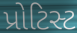
પ્રોટિસ્ટ